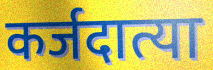
कर्जदात्या